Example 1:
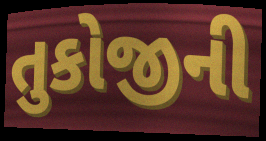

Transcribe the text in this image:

તુકોજીની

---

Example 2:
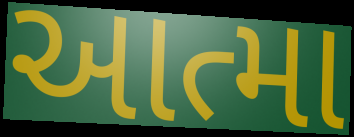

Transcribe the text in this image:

આત્મા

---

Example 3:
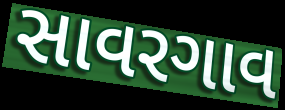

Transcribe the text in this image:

સાવરગાવ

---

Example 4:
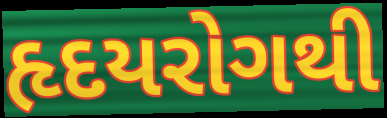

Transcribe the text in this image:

હૃદયરોગથી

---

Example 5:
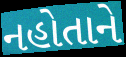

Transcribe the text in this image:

નહોતાને